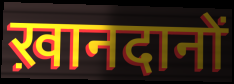
ख़ानदानों